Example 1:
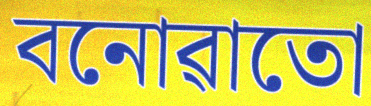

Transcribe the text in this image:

বনোৱাতো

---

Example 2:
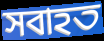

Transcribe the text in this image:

সবাহত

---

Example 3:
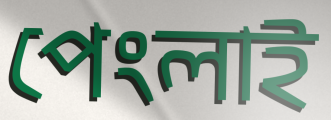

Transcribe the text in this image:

পেংলাই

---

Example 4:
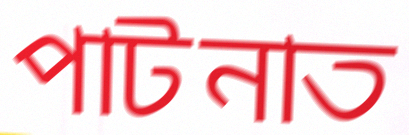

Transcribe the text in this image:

পাটনাত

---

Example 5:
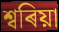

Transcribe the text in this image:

শ্বৰিয়া